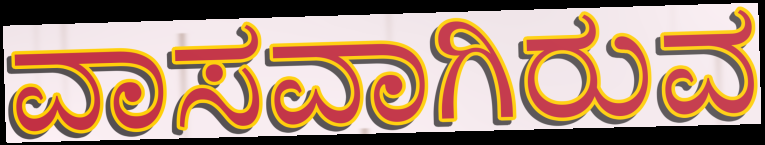
ವಾಸವಾಗಿರುವ